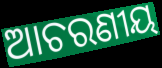
ଆଚରଣୀୟ